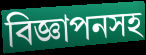
বিজ্ঞাপনসহ